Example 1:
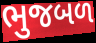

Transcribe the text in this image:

ભુજબળ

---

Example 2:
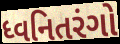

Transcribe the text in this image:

ધ્વનિતરંગો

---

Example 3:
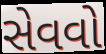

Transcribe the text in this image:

સેવવો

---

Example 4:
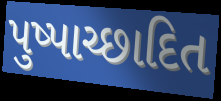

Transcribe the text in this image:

પુષ્પાચ્છાદિત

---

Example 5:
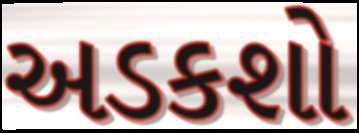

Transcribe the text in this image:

અડકશો